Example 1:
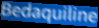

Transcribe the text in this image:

Bedaquiline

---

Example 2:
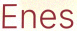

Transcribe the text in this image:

Enes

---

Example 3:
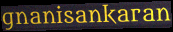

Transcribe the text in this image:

gnanisankaran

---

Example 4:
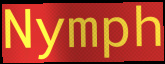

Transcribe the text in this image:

Nymph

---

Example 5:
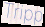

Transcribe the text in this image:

Tripp